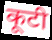
कूटी